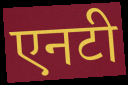
एनटी